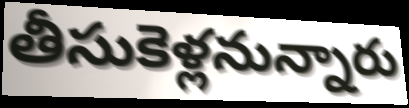
తీసుకెళ్లనున్నారు